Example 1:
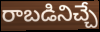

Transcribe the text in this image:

రాబడినిచ్చే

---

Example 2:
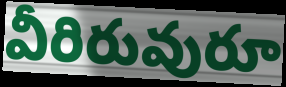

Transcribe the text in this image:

వీరిరువురూ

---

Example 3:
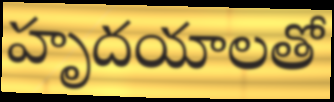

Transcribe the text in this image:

హృదయాలతో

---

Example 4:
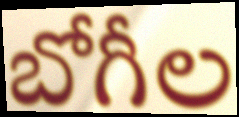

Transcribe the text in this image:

బోగీల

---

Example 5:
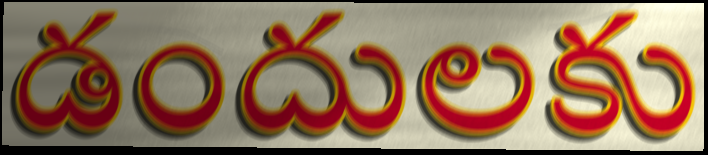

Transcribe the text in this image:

డందులకు